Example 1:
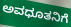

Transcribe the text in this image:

ಅವಧೂತನಿಗೆ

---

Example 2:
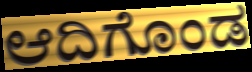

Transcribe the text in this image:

ಆದಿಗೊಂಡ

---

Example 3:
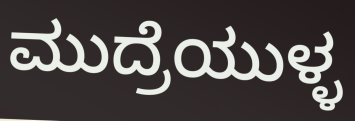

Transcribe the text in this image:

ಮುದ್ರೆಯುಳ್ಳ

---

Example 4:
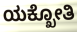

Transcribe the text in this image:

ಯಕ್ಖೋತಿ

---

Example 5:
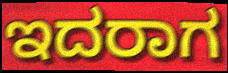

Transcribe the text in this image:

ಇದರಾಗ